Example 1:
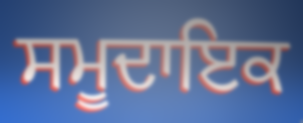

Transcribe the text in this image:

ਸਮੂਦਾਇਕ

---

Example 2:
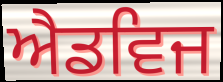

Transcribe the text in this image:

ਐਡਵਿਜ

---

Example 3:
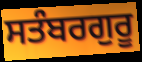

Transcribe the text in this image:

ਸਤੰਬਰਗੁਰੂ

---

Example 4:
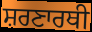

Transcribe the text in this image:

ਸ਼ਰਣਾਰਥੀ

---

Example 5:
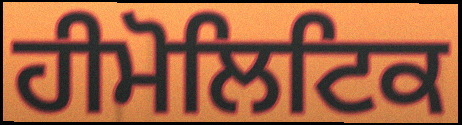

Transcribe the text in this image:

ਹੀਮੋਲਿਟਿਕ